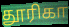
தூரிகா